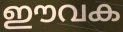
ഈവക